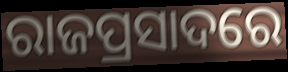
ରାଜପ୍ରସାଦରେ